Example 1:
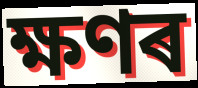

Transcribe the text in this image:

ক্ষণৰ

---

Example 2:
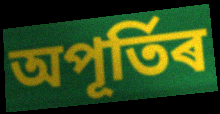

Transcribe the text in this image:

অপূৰ্তিৰ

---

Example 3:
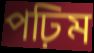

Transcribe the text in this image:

পঢ়িম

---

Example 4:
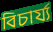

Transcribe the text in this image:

বিচাৰ্য্য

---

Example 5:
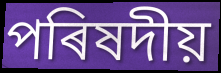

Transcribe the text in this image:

পৰিষদীয়